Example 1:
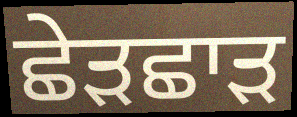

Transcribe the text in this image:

ਛੇੜਛਾੜ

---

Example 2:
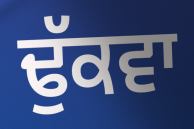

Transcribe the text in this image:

ਢੁੱਕਵਾ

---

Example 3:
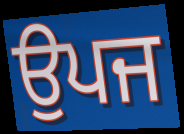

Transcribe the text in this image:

ਉਪਜ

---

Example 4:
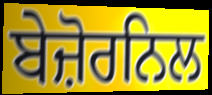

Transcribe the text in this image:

ਬੇਜ਼ੋਰਨਿਲ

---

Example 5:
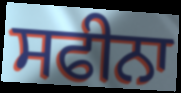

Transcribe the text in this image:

ਸਫੀਨਾ